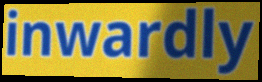
inwardly